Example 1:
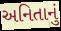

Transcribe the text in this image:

અનિતાનું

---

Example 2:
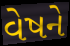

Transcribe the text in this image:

વેષને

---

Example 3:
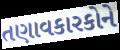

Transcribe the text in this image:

તણાવકારકોને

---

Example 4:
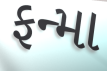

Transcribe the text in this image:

ફન્મા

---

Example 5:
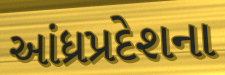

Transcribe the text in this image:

આંધ્રપ્રદેશના